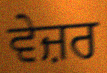
ਵੇਜ਼ਰ